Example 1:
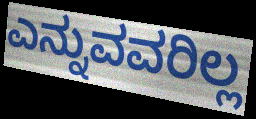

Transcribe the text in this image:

ಎನ್ನುವವರಿಲ್ಲ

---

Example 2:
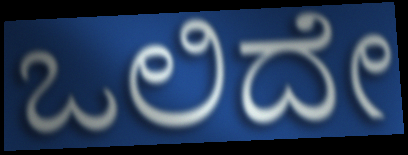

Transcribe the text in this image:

ಒಲಿದೇ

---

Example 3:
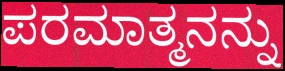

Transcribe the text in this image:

ಪರಮಾತ್ಮನನ್ನು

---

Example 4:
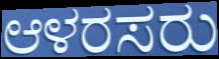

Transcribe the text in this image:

ಆಳರಸರು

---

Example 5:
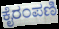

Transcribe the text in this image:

ಕೈರಂಪಣಿ